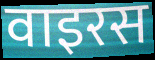
वाइरस